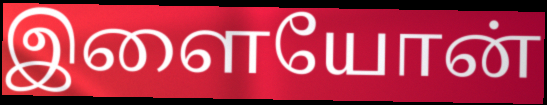
இளையோன்